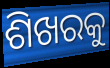
ଶିଖରକୁ